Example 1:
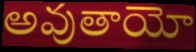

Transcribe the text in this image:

అవుతాయో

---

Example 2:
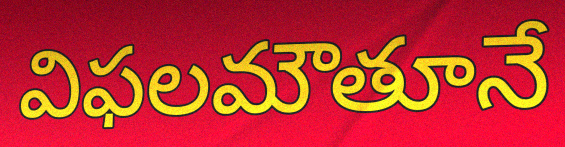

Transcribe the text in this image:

విఫలమౌతూనే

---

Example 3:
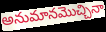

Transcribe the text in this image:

అనుమానమొచ్చినా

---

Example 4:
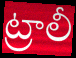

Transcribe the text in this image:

ట్రాలీ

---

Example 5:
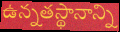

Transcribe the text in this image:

ఉన్నతస్థానాన్ని